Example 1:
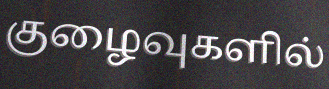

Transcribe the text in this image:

குழைவுகளில்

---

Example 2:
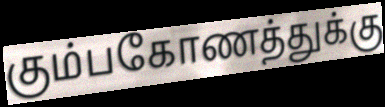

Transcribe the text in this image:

கும்பகோணத்துக்கு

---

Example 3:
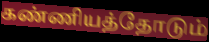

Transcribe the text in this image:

கண்ணியத்தோடும்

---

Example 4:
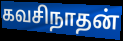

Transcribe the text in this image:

கவசிநாதன்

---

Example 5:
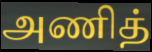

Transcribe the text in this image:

அணித்